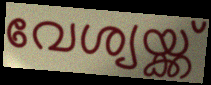
വേശ്യയ്ക്ക്